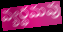
వ్యర్థమవు